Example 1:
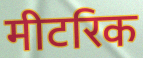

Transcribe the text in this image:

मीटरिक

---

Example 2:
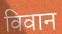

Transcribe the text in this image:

विवान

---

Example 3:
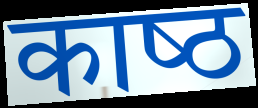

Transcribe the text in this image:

काष्‍ठ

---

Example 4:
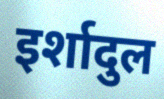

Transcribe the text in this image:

इर्शादुल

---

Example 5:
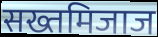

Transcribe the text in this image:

सख्तमिजाज